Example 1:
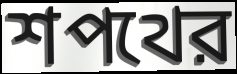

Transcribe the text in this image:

শপথের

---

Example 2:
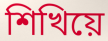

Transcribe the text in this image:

শিখিয়ে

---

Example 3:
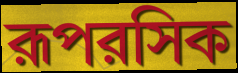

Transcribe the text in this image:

রূপরসিক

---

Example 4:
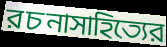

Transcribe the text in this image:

রচনাসাহিত্যের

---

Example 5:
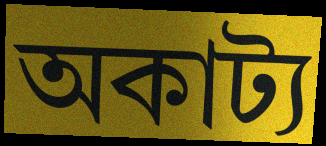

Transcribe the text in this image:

অকাট্য